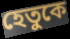
হেতুকে